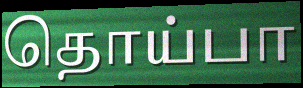
தொய்பா